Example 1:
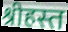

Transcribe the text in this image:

श्रीहस्त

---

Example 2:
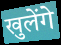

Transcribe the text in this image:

खुलेंगे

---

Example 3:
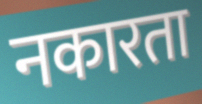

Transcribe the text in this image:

नकारता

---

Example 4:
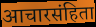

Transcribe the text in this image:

आचारसंहिता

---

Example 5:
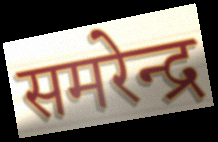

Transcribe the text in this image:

समरेन्द्र